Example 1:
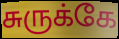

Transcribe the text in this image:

சுருக்கே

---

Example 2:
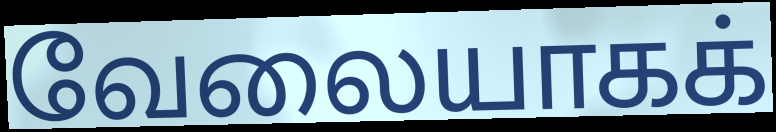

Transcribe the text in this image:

வேலையாகக்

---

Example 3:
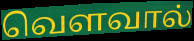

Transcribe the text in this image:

வெளவால்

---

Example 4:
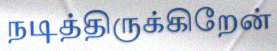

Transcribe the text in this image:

நடித்திருக்கிறேன்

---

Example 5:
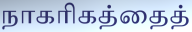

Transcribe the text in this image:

நாகரிகத்தைத்